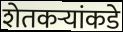
शेतकर्‍यांकडे